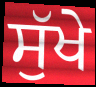
ਸੁੱਖੇ